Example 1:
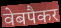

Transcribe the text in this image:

वेबपैकर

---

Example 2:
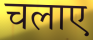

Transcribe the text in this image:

चलाए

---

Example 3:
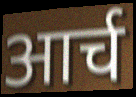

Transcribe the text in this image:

आर्च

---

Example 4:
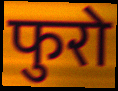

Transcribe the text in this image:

फुरो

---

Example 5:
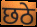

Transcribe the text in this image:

छठे